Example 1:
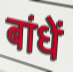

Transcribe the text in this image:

बांधें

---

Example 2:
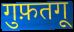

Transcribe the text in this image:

गुफ़तगू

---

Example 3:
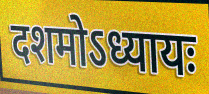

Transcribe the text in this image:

दशमोऽध्यायः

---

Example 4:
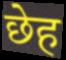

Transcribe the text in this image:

छेह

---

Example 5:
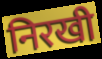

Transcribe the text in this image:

निरखी